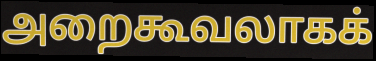
அறைகூவலாகக்